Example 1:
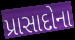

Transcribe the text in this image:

પ્રાસાદોના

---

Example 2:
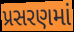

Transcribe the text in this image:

પ્રસરણમાં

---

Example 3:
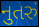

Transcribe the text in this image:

નુતરું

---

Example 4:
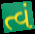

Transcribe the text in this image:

ત્વં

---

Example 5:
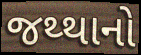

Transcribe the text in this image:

જથ્થાનો